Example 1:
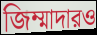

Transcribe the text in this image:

জিম্মাদারও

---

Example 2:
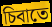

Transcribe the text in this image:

চিবাতে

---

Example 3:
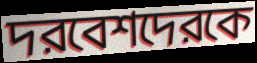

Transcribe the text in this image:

দরবেশদেরকে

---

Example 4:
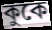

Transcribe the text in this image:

কুকে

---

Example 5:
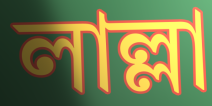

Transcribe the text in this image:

লাল্লা